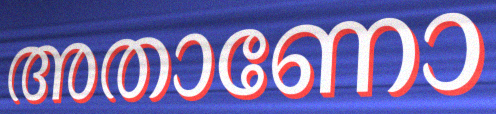
അതാണോ